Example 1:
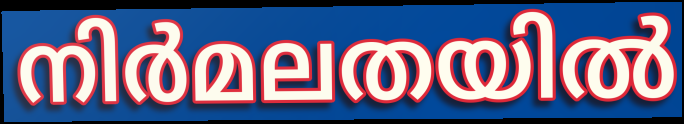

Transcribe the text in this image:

നിർമലതയിൽ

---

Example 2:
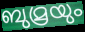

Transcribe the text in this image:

ബുമ്രയും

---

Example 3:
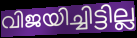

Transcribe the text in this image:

വിജയിച്ചിട്ടില്ല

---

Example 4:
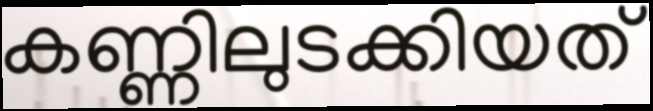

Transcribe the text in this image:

കണ്ണിലുടക്കിയത്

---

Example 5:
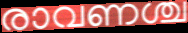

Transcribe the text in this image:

രാവണശ്ച